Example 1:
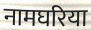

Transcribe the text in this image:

नामघरिया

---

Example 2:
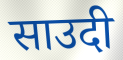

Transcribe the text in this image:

साउदी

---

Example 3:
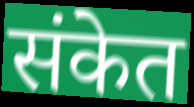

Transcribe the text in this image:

संकेत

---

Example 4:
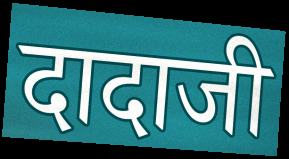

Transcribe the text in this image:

दादाजी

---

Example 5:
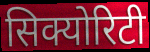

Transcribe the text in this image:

सिक्योरिटी